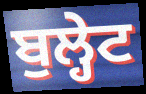
ਬੁਲ੍ਹੇਟ